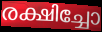
രക്ഷിച്ചോ